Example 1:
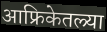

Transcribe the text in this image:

आफ्रिकेतल्या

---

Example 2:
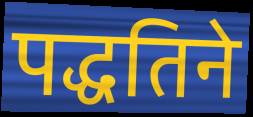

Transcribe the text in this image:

पद्धतिने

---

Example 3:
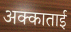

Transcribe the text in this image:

अक्काताई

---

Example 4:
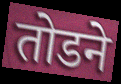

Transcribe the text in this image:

तोडने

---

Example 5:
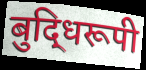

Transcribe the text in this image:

बुद्धिरूपी